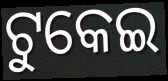
ଟୁକେଇ